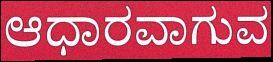
ಆಧಾರವಾಗುವ